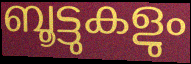
ബൂട്ടുകളും